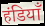
हंडियाँ